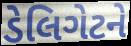
ડેલિગેટને